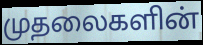
முதலைகளின்